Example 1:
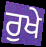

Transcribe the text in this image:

ਰੁਖੇ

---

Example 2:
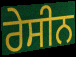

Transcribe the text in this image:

ਰੇਸੀਨ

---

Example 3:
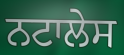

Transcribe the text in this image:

ਨਟਾਲੇਸ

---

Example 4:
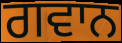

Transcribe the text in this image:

ਗਵਾਨ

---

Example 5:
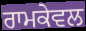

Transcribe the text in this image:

ਰਾਮਕੇਵਲ